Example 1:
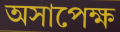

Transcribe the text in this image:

অসাপেক্ষ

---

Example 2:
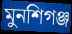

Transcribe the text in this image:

মুনশিগঞ্জ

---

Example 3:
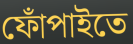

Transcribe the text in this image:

ফোঁপাইতে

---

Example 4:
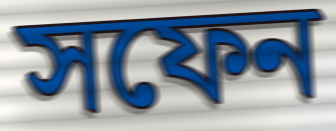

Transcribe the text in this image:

সফেন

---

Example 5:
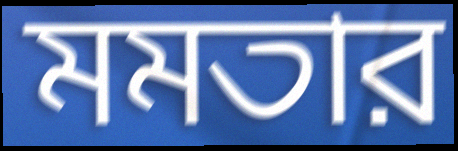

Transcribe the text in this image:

মমতার